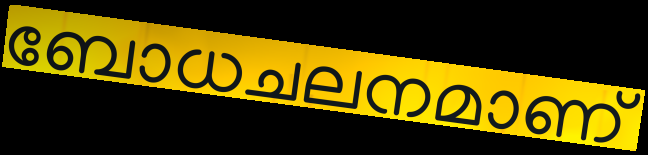
ബോധചലനമാണ്